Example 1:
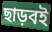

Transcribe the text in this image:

ছাড়বই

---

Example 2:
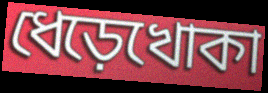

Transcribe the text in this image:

ধেড়েখোকা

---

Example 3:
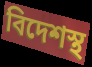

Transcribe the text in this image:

বিদেশস্থ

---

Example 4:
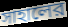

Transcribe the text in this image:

সাহালের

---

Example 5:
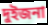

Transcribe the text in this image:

দুইজনা